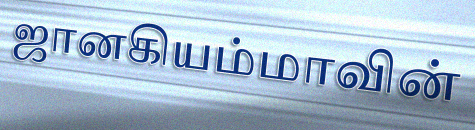
ஜானகியம்மாவின்